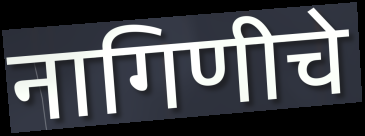
नागिणीचे